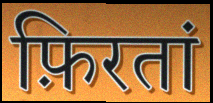
फ़िरतां